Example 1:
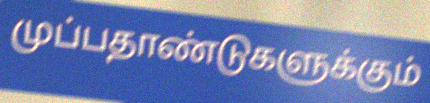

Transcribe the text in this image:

முப்பதாண்டுகளுக்கும்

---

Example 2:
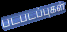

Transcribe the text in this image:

படபடப்புகள்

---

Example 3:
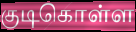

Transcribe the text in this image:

குடிகொள்ள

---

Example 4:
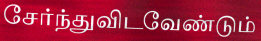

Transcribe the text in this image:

சேர்ந்துவிடவேண்டும்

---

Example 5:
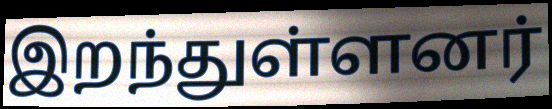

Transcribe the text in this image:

இறந்துள்ளனர்